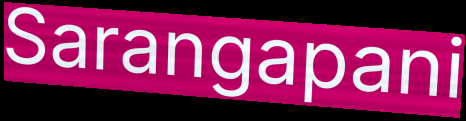
Sarangapani